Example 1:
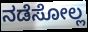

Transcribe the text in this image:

ನಡೆಸೋಲ್ಲ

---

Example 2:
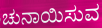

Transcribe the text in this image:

ಚುನಾಯಿಸುವ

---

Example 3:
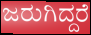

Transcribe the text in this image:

ಜರುಗಿದ್ದರೆ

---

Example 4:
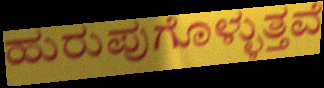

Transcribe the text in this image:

ಹುರುಪುಗೊಳ್ಳುತ್ತವೆ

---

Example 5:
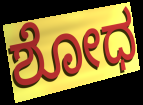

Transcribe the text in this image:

ಶೋಧ